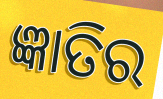
ଜ୍ଞାତିର